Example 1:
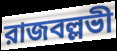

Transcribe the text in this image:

রাজবল্লভী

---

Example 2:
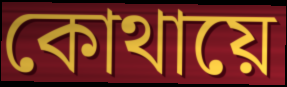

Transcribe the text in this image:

কোথায়ে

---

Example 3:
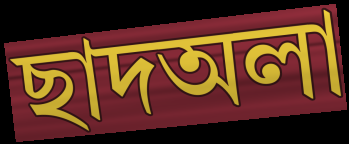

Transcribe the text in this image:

ছাদঅলা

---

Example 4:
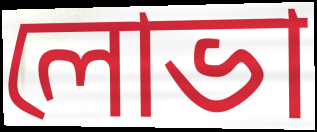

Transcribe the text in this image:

লোভা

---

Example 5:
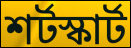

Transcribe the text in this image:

শর্টস্কার্ট